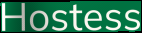
Hostess